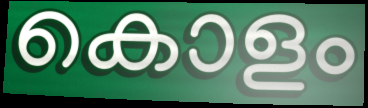
കൊളം